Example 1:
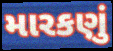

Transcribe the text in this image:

મારકણું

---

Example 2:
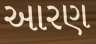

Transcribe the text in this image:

આરણ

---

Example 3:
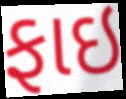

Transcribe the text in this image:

ફાઇ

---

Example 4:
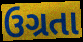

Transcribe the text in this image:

ઉગ્રતા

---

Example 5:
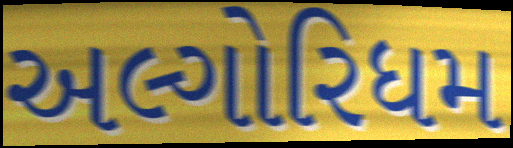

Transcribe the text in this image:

અલ્ગોરિધમ